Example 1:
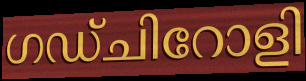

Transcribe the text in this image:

ഗഡ്ചിറോളി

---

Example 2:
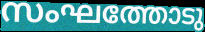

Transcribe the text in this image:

സംഘത്തോടു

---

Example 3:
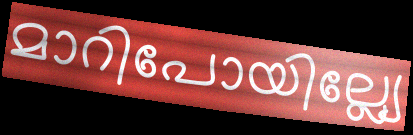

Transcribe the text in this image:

മാറിപോയില്ല്യേ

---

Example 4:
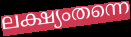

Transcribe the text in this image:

ലക്ഷ്യംതന്നെ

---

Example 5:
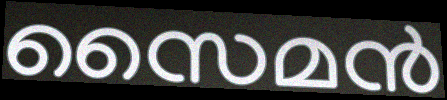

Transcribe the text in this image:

സൈമൻ